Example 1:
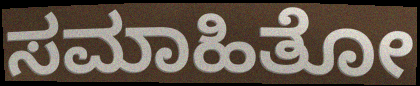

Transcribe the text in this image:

ಸಮಾಹಿತೋ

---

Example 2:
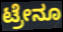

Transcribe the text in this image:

ಟ್ರೇನೂ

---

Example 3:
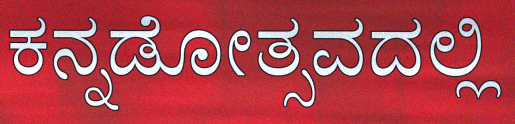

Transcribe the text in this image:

ಕನ್ನಡೋತ್ಸವದಲ್ಲಿ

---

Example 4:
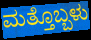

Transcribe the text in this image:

ಮತ್ತೊಬ್ಬಳು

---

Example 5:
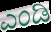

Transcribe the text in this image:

ಎಂಡಿ